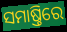
ସମାଷ୍ତିରେ